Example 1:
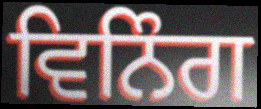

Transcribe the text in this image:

ਵਿਨਿੰਗ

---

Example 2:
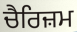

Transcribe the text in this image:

ਚੈਰਿਜ਼ਮ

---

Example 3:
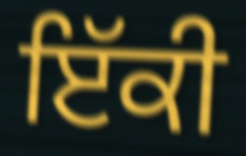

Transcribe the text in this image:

ਇੱਕੀ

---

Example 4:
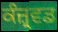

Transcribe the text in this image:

ਕੰਜ਼੍ਰਵਡ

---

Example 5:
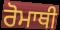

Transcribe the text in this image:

ਰੋਮਾਥੀ